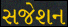
સજેશન